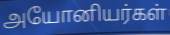
அயோனியர்கள்